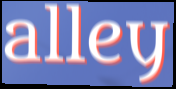
alley